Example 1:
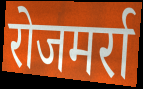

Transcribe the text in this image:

रोजमर्रा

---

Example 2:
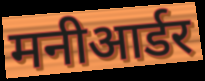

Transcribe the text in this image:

मनीआर्डर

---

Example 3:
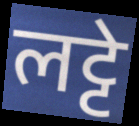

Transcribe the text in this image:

लट्टे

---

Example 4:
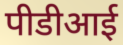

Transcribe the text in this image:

पीडीआई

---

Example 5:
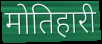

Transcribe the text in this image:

मोतिहारी